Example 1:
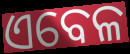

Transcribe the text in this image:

ଏବେଳ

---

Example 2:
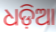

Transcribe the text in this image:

ଧଡ଼ିଆ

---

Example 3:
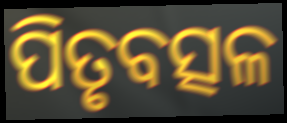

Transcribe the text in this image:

ପିତୃବତ୍ସଳ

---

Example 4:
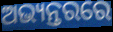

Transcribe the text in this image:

ଅଭ୍ୟନ୍ତରରେ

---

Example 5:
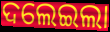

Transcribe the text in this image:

ଦଲେଇଲା